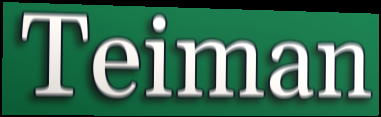
Teiman